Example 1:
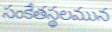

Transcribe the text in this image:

సంకేతస్థలమున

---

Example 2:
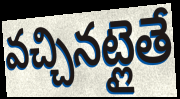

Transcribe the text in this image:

వచ్చినట్లైతే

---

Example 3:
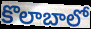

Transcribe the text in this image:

కొలాబాలో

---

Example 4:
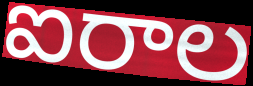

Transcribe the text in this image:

ఐరాల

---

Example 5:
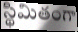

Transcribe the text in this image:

స్థిమితంగా